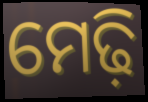
ମେଢ଼ି